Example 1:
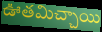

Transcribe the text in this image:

ఊతమిచ్చాయి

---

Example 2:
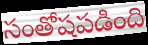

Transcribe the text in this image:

సంతోషపడింది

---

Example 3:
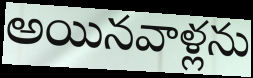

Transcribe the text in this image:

అయినవాళ్లను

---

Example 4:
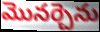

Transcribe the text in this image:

మొనర్చెను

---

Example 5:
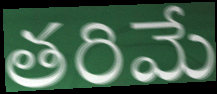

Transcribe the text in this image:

తరిమే